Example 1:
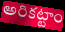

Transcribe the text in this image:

అరికట్టాం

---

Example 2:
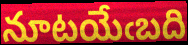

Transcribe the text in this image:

నూటయేఁబది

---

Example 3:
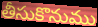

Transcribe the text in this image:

తీసుకొనుము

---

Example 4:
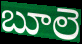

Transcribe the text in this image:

బూలె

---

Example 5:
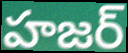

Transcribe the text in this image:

హజర్